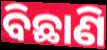
ବିଛାଣି